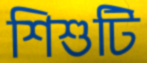
শিশুটি